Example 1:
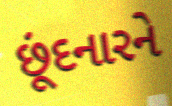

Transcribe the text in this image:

છૂંદનારને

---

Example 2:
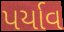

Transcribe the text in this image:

પર્યાવ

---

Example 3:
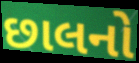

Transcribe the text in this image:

છાલનો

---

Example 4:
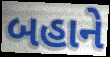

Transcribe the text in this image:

બહાને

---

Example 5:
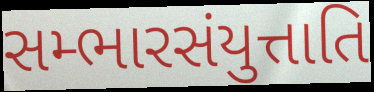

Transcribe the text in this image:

સમ્ભારસંયુત્તાતિ